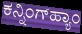
ಕನ್ನಿಂಗ್‌ಹ್ಯಾಂ